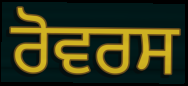
ਰੋਵਰਸ